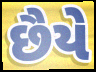
છૈયે